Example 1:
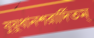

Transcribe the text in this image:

যুয়ুধানশরার্দিতম্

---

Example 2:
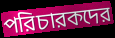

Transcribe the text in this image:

পরিচারকদের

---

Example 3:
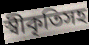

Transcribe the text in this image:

স্বীকৃতিসহ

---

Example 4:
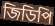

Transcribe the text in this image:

জিডিপি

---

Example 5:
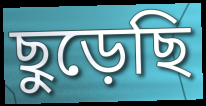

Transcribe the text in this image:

ছুড়েছি